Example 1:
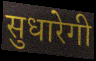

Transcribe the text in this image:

सुधारेगी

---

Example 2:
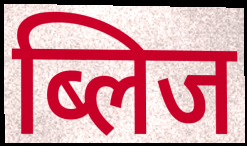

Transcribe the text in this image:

ब्लिज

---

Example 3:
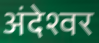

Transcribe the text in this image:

अंदेश्वर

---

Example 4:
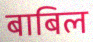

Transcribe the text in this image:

बाबिल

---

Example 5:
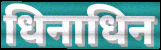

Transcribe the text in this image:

धिनाधिन